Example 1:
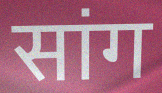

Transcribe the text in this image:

सांग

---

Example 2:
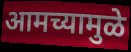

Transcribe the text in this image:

आमच्यामुळे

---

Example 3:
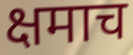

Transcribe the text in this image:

क्षमाच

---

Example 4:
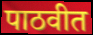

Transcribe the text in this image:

पाठवीत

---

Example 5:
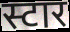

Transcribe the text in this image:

स्टार